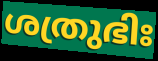
ശത്രുഭിഃ